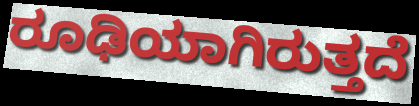
ರೂಢಿಯಾಗಿರುತ್ತದೆ